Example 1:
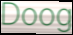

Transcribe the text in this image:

Doog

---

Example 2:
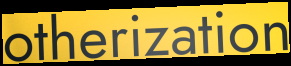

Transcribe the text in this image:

otherization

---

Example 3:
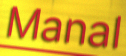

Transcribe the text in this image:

Manal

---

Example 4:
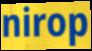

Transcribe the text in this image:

nirop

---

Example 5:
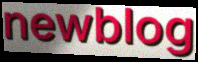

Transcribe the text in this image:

newblog